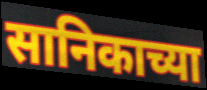
सानिकाच्या